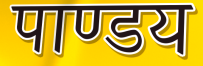
पाण्डय